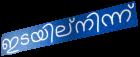
ഇടയില്നിന്ന്